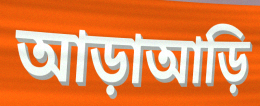
আড়াআড়ি